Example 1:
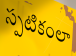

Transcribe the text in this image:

స్పటికంలా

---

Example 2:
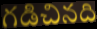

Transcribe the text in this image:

గడిచినది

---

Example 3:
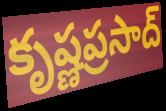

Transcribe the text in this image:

కృష్ణప్రసాద్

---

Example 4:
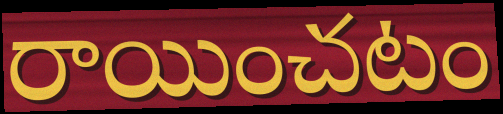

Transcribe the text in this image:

రాయించటం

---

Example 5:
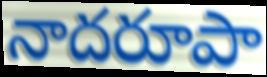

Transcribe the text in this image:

నాదరూపా